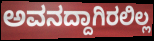
ಅವನದ್ದಾಗಿರಲಿಲ್ಲ